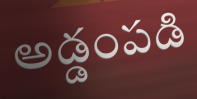
అడ్డంపడి